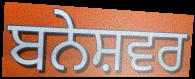
ਬਨੇਸ਼ਵਰ